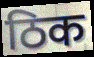
ठिक